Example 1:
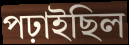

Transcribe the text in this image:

পঢ়াইছিল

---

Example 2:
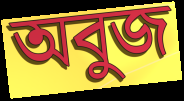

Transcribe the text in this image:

অবুজ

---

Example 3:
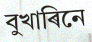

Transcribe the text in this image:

বুখাৰিনে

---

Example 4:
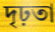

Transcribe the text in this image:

দৃঢ়তা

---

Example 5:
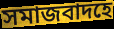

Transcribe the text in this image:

সমাজবাদহে